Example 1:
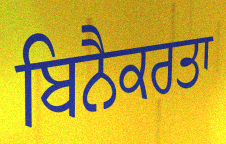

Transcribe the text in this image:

ਬਿਨੈਕਰਤਾ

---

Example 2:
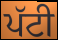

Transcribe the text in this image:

ਪੱਟੀ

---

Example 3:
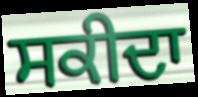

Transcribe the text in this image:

ਸਕੀਦਾ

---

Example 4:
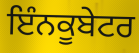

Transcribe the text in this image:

ਇੰਨਕੂਬੇਟਰ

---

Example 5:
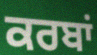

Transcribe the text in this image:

ਕਰਬਾਂ